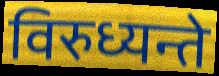
विरुध्यन्ते